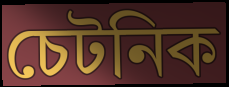
চেটনিক